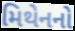
મિથેનનો